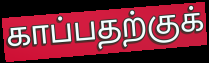
காப்பதற்குக்